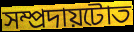
সম্প্ৰদায়টোত